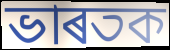
ভাৰতক